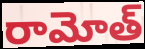
రామోత్